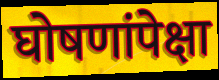
घोषणांपेक्षा